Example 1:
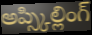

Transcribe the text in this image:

అప్స్కిల్లింగ్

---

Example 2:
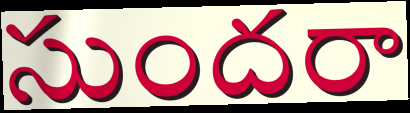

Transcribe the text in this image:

సుందరా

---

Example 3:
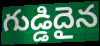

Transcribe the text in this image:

గుడ్డిదైన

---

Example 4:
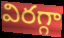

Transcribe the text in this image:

విరగ్గా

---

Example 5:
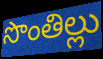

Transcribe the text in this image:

సొంతిల్లు